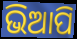
ଭିଆପି